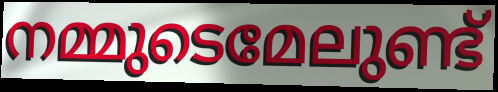
നമ്മുടെമേലുണ്ട്